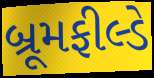
બ્રૂમફીલ્ડે